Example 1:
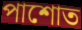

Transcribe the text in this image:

পাশোত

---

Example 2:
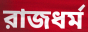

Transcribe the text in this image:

রাজধর্ম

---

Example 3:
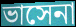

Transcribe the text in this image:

ভাসেনা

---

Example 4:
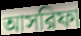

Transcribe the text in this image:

আসরিফা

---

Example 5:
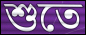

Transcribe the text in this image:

শুতে